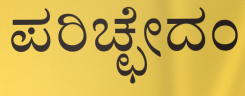
ಪರಿಚ್ಛೇದಂ